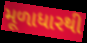
મૂળાધારથી